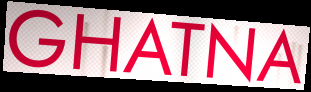
GHATNA